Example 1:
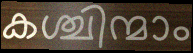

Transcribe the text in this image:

കശ്ചിന്മാം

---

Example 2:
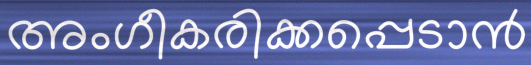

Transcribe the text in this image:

അംഗീകരിക്കപ്പെടാൻ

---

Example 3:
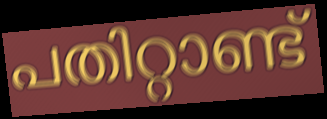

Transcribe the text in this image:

പതിറ്റാണ്ട്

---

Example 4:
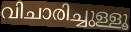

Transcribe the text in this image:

വിചാരിച്ചുള്ളൂ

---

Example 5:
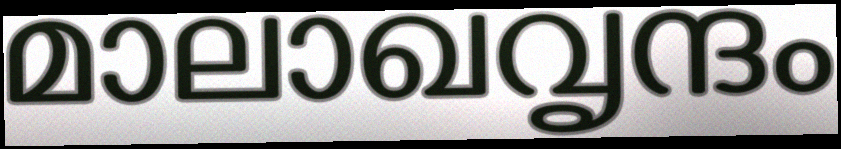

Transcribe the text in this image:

മാലാഖവൃന്ദം